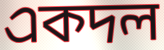
একদল